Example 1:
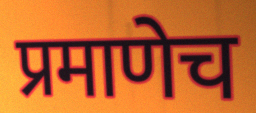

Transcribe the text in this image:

प्रमाणेच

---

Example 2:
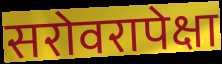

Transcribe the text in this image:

सरोवरापेक्षा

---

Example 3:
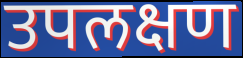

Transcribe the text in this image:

उपलक्षण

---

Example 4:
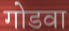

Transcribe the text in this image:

गोडवा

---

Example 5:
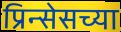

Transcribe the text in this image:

प्रिन्सेसच्या